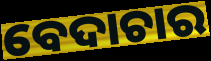
ବେଦାଚାର